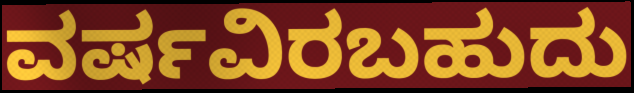
ವರ್ಷವಿರಬಹುದು